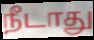
நீடாது